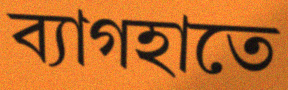
ব্যাগহাতে